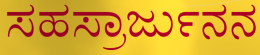
ಸಹಸ್ರಾರ್ಜುನನ